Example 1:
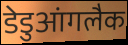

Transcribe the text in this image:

डेडुआंगलैक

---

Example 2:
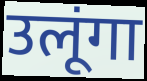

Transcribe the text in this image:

उलूंगा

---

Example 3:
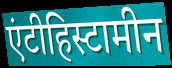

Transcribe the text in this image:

एंटीहिस्टामीन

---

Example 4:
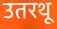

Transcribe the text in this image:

उतरथू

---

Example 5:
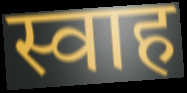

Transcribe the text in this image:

स्वाह